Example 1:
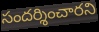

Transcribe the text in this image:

సందర్శించారని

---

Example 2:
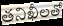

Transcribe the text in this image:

తనిఖీలతో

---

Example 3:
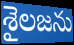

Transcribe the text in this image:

శైలజను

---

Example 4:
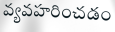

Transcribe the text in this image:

వ్యవహరించడం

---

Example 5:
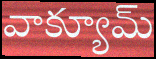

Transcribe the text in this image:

వాక్యూమ్